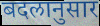
बदलानुसार